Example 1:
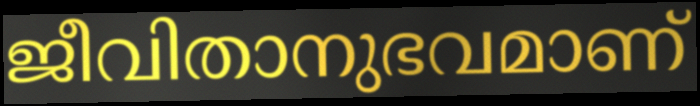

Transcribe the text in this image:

ജീവിതാനുഭവമാണ്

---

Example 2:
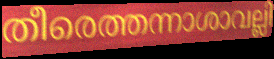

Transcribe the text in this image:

തീരെത്തന്നാശാവല്ലി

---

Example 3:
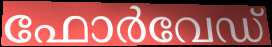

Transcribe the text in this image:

ഫോർവേഡ്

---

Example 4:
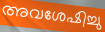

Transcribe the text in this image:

അവശേഷിച്ചു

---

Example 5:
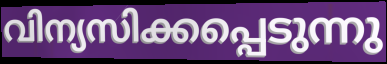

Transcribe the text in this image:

വിന്യസിക്കപ്പെടുന്നു